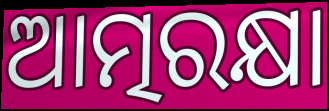
ଆତ୍ମରକ୍ଷା